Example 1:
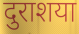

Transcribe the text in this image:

दुराशया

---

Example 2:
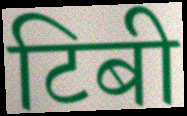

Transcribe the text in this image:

टिबी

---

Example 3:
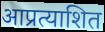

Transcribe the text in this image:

आप्रत्याशित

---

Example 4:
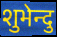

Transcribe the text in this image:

शुभेन्दु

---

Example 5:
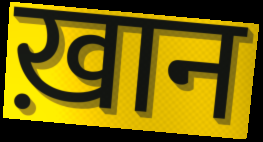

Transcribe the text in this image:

ख़ान